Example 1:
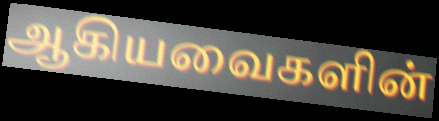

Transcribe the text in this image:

ஆகியவைகளின்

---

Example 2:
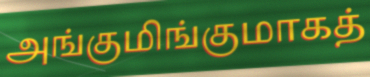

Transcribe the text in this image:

அங்குமிங்குமாகத்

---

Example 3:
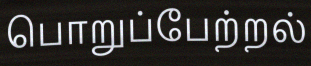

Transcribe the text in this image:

பொறுப்பேற்றல்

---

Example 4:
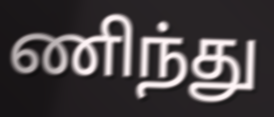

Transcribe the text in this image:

ணிந்து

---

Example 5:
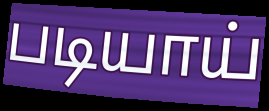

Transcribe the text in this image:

படியாய்